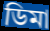
ডিমা